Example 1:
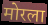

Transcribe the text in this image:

मोरला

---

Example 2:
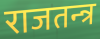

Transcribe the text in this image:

राजतन्त्र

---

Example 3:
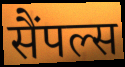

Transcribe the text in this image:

सैंपल्स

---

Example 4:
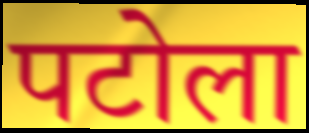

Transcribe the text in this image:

पटोला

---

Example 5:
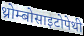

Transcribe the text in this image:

थ्रोम्बोसाइटोपेथी